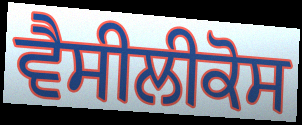
ਵੈਸੀਲੀਕੋਸ